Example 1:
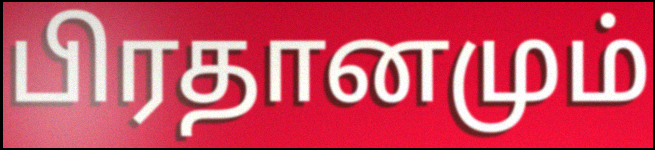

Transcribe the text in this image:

பிரதானமும்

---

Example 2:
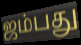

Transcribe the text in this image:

ஜம்பது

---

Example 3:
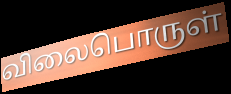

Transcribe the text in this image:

விலைபொருள்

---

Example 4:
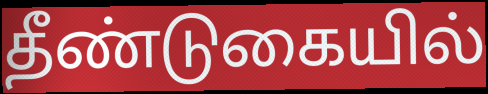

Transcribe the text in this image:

தீண்டுகையில்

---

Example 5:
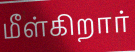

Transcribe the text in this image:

மீள்கிறார்